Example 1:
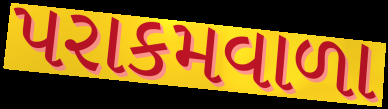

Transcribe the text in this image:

પરાકમવાળા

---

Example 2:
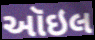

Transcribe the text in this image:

ઑઇલ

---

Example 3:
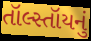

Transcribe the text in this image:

તૉલ્સ્તૉયનું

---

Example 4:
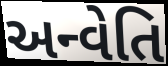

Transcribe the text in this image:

અન્વેતિ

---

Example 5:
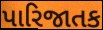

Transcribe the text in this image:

પારિજાતક